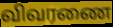
விவரணை